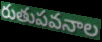
రుతుపవనాల